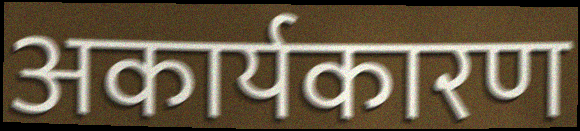
अकार्यकारण